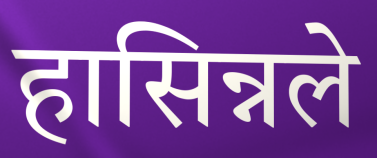
हासिन्नले